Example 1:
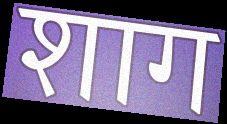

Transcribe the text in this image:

शाग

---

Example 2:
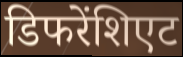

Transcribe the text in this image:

डिफरेंशिएट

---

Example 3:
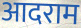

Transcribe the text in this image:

आदराम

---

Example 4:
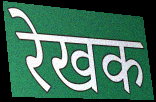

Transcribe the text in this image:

रेखक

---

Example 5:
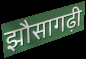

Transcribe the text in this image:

झौसागढ़ी